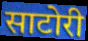
साटोरी